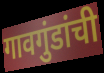
गावगुंडांची